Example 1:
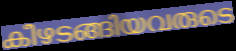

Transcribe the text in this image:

കീഴടങ്ങിയവരുടെ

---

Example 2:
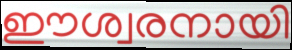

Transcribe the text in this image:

ഈശ്വരനായി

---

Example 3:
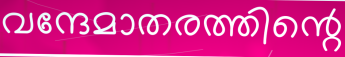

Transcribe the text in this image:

വന്ദേമാതരത്തിന്റെ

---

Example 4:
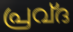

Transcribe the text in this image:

പ്രവ്ദ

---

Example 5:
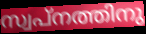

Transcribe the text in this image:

സ്വപ്നത്തിനു